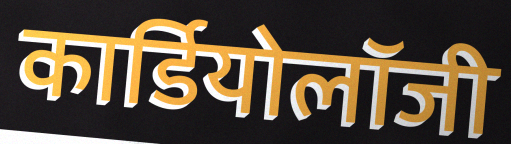
कार्डियोलॉजी